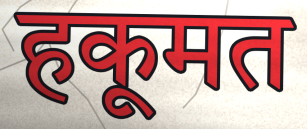
हकूमत